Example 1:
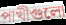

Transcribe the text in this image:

পাখীগুলো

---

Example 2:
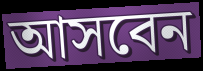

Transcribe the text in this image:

আসবেন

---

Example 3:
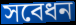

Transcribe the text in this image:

সবেধন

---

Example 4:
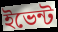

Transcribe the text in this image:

ইভেন্ট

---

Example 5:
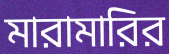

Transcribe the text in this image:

মারামারির